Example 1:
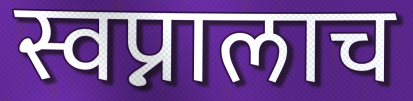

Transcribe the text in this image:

स्वप्नालाच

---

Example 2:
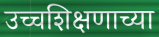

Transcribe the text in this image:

उच्चशिक्षणाच्या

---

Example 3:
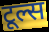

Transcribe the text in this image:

टूल्स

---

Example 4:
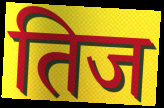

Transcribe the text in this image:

तिज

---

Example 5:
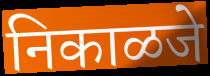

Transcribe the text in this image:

निकाळजे